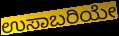
ಉಸಾಬರಿಯೇ